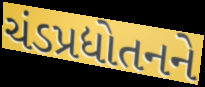
ચંડપ્રદ્યોતનને